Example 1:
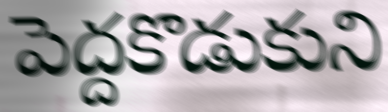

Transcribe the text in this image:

పెద్దకొడుకుని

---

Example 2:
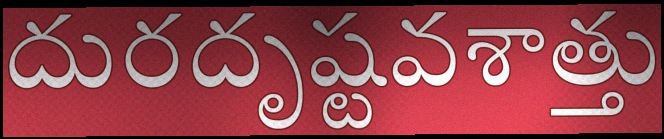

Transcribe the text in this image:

దురదృష్టవశాత్తు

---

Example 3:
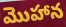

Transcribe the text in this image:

మొహాన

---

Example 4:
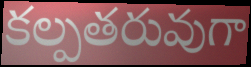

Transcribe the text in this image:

కల్పతరువుగా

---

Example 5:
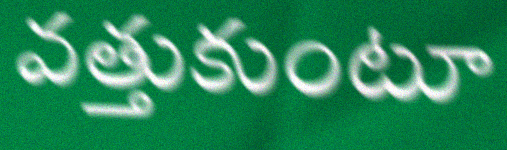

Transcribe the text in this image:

వత్తుకుంటూ